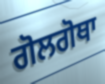
ਗੋਲਗੋਥਾ